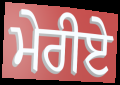
ਮੇਰੀਏ